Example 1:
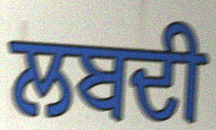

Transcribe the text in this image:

ਲਬਦੀ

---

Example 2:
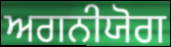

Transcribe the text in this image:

ਅਗਨੀਯੋਗ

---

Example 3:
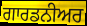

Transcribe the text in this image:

ਗਾਰਡਨੀਅਰ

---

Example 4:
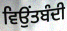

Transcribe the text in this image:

ਵਿਉਂਤਬੰਦੀ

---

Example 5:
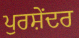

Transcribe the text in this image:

ਪੁਰਸ਼ੇਂਦਰ